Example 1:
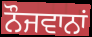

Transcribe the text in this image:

ਨੌਜਵਾਨਾਂ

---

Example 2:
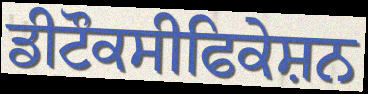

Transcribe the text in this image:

ਡੀਟੌਕਸੀਫਿਕੇਸ਼ਨ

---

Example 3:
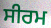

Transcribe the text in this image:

ਸੀਰਮ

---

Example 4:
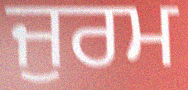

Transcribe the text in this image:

ਜੁਰਮ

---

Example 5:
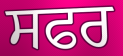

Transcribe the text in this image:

ਸਫਰ